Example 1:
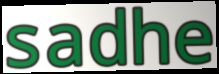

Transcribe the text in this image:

sadhe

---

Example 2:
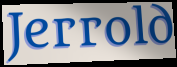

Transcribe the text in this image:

Jerrold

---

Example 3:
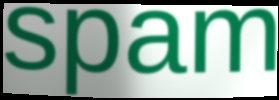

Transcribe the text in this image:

spam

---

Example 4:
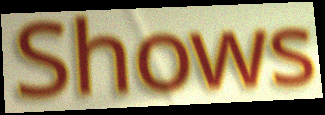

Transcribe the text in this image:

Shows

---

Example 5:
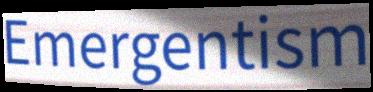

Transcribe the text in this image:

Emergentism